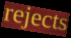
rejects